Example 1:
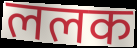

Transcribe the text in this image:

ललक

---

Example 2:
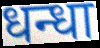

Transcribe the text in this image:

धन्धा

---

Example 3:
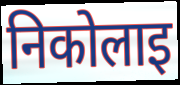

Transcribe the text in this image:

निकोलाइ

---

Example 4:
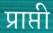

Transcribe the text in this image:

प्राप्ती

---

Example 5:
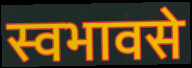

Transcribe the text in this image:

स्वभावसे